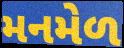
મનમેળ